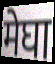
मेघा